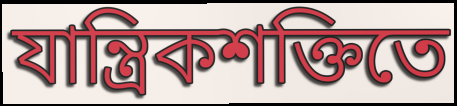
যান্ত্রিকশক্তিতে